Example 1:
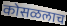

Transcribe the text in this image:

कोसळलाच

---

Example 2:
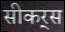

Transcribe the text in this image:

सीकर्स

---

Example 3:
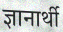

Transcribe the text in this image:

ज्ञानार्थी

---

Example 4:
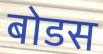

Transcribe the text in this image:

बोडस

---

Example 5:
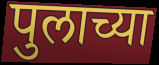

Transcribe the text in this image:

पुलाच्या